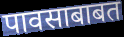
पावसाबाबत